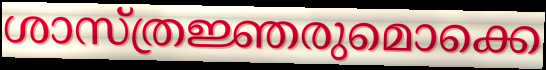
ശാസ്ത്രജ്ഞരുമൊക്കെ